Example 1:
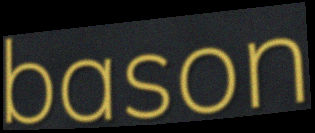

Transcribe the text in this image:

bason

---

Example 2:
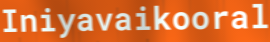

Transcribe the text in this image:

Iniyavaikooral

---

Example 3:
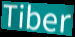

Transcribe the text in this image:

Tiber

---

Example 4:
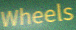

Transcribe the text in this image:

Wheels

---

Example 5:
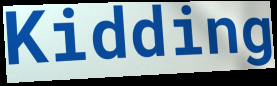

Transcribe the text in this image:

Kidding